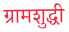
ग्रामशुद्धी